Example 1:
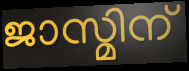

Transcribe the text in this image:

ജാസ്മിന്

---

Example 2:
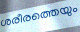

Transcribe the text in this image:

ശരീരത്തെയും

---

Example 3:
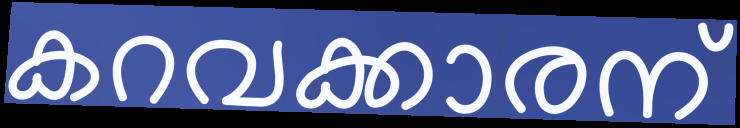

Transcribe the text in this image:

കറവക്കാരന്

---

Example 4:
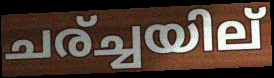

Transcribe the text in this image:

ചര്ച്ചയില്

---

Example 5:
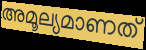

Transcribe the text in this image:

അമൂല്യമാണത്